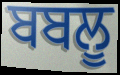
ਬਬਲੂ